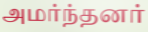
அமர்ந்தனர்